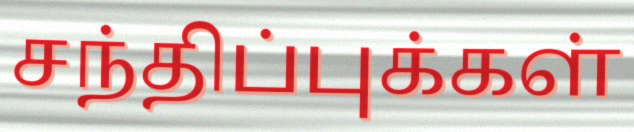
சந்திப்புக்கள்